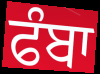
ਫੰਬਾ